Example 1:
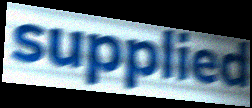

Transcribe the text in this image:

supplied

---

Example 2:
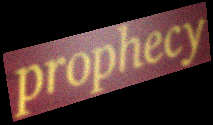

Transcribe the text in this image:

prophecy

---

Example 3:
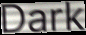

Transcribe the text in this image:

Dark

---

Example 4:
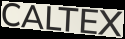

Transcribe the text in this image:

CALTEX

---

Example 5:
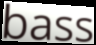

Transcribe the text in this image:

bass